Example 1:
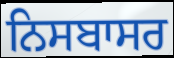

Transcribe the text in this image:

ਨਿਸਬਾਸਰ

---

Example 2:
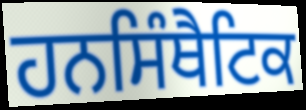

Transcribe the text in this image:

ਹਨਸਿੰਥੈਟਿਕ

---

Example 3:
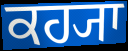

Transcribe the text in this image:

ਕਹ੍ਯਾ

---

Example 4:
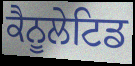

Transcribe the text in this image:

ਕੈਨੂਲੇਟਿਡ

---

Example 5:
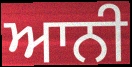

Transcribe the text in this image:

ਆਨੀ